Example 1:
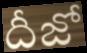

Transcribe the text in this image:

దీజో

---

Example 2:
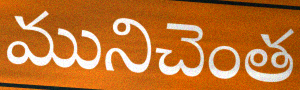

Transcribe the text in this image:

మునిచెంత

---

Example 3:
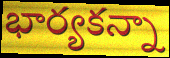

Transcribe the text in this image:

భార్యకన్నా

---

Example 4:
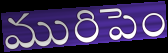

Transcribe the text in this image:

మురిపెం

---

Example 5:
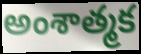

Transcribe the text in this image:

అంశాత్మక